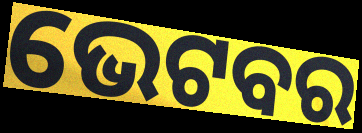
ଭେଟବର